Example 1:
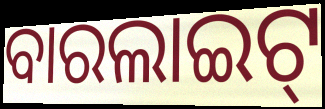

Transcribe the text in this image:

ବାରଲାଇଟ୍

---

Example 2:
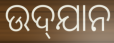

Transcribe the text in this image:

ଉଦ୍‌ଯାନ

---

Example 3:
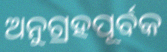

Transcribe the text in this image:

ଅନୁଗ୍ରହପୂର୍ବକ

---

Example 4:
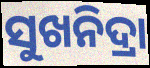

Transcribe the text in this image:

ସୁଖନିଦ୍ରା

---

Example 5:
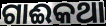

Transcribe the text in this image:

ଗାଈକଥା